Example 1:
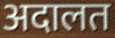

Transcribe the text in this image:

अदालत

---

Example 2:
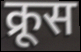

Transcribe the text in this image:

क्रूस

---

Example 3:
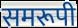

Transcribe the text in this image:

समरूपी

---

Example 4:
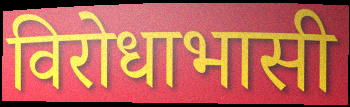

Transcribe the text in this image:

विरोधाभासी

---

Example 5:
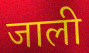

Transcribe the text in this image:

जाली